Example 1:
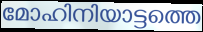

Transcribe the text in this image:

മോഹിനിയാട്ടത്തെ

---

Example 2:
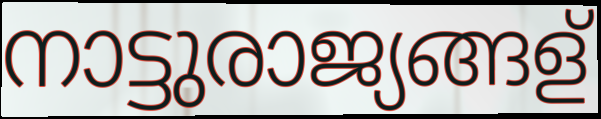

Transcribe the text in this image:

നാട്ടുരാജ്യങ്ങള്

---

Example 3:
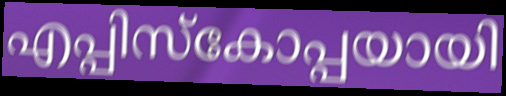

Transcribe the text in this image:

എപ്പിസ്കോപ്പയായി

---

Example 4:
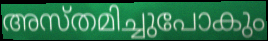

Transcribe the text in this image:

അസ്തമിച്ചുപോകും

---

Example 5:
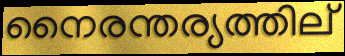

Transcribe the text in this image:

നൈരന്തര്യത്തില്